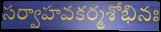
సర్వాహవకర్మశోభినః